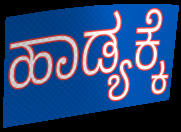
ಹಾಡ್ಯಕ್ಕೆ